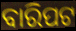
ବାରିପଟ